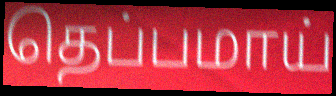
தெப்பமாய்